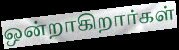
ஒன்றாகிறார்கள்